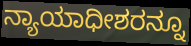
ನ್ಯಾಯಾಧೀಶರನ್ನೂ